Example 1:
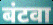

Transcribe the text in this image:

बंटवा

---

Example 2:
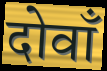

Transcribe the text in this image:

दोवाँ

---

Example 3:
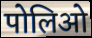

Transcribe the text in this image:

पोलिओ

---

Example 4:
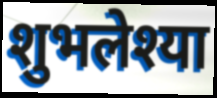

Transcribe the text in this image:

शुभलेश्या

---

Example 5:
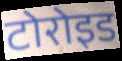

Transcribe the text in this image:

टोरोइड